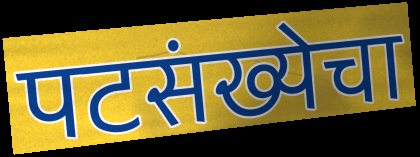
पटसंख्येचा